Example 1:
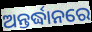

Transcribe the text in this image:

ଅନ୍ତର୍ଦ୍ଧାନରେ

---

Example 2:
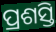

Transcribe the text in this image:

ପ୍ରଶସ୍ତି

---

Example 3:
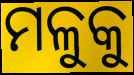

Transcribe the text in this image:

ମଳୁକୁ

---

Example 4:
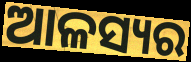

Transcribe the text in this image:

ଆଳସ୍ୟର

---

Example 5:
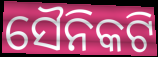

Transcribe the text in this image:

ସୈନିକଟି